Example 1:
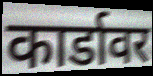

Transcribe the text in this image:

कार्डावर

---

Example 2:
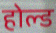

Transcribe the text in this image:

होल्ड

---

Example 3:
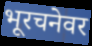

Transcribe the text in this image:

भूरचनेवर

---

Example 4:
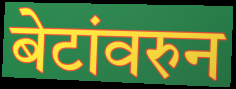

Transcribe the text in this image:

बेटांवरुन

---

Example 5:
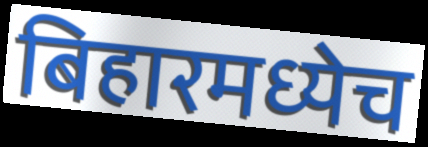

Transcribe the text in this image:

बिहारमध्येच